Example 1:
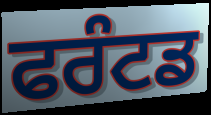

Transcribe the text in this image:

ਫਰੰਟਡ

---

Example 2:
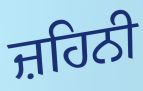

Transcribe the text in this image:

ਜ਼ਹਿਨੀ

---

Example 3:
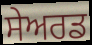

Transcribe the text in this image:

ਸੇਅਰਡ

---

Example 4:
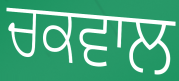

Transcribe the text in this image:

ਚਕਵਾਲ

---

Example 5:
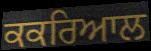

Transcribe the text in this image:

ਕਕਰਿਆਲ